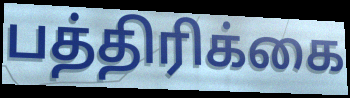
பத்திரிக்கை